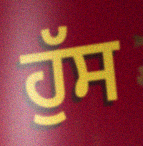
ਹੁੱਸ